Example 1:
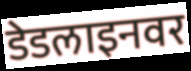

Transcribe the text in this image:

डेडलाइनवर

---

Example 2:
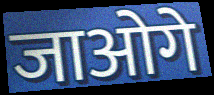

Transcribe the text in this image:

जाओगे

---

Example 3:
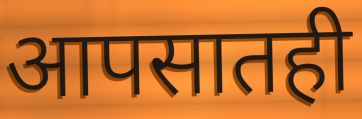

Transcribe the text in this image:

आपसातही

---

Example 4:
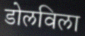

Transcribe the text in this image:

डोलविला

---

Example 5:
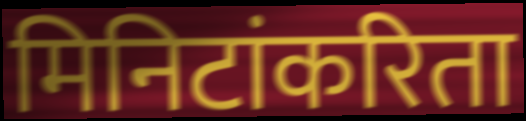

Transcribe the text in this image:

मिनिटांकरिता